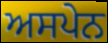
ਅਸਪੇਨ